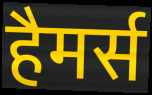
हैमर्स